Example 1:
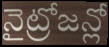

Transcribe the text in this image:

నైట్రోజన్లో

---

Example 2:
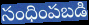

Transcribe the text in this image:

సంధింపబడి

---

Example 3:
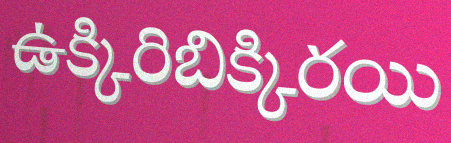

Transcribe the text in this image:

ఉక్కిరిబిక్కిరయి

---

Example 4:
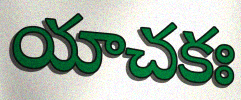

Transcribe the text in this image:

యాచకః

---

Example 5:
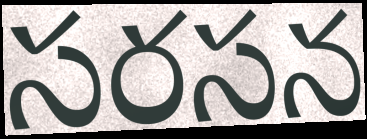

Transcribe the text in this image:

సరసన